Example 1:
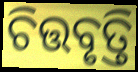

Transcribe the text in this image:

ଚିତ୍ତବୃତ୍ତି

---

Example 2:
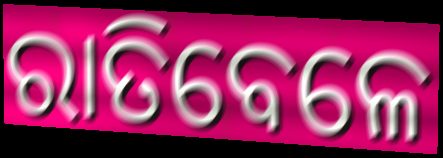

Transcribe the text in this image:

ରାତିବେଳେ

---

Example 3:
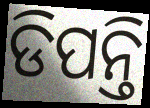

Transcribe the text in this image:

ଡିପନ୍ତି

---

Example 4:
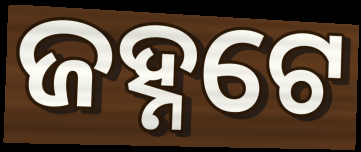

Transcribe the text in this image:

ଜହ୍ନଟେ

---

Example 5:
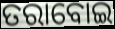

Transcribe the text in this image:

ତରାବୋଇ